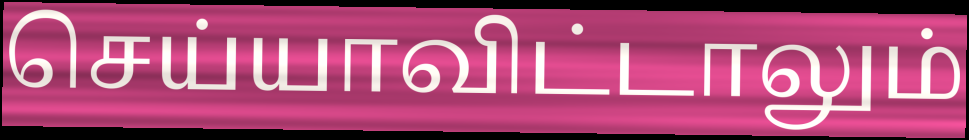
செய்யாவிட்டாலும்